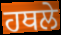
ਹਥਲੇ